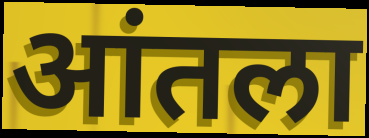
आंतला